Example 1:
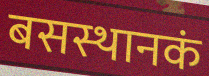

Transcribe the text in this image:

बसस्थानकं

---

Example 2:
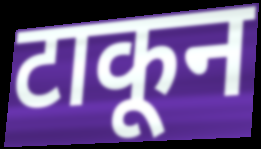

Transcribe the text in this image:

टाकून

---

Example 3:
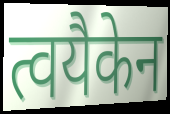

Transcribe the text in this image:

त्वयैकेन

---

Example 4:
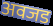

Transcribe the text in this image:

अवजड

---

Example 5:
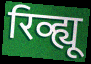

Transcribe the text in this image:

रिव्ह्यू